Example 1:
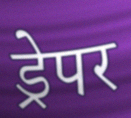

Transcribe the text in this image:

ड्रेपर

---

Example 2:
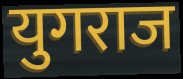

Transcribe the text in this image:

युगराज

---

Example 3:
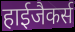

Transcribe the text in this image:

हाईजैकर्स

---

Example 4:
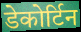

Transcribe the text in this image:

डेकोर्टिन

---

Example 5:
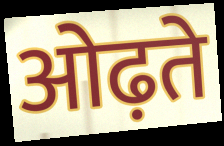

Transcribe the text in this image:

ओढ़ते